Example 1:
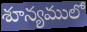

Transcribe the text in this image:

శూన్యములో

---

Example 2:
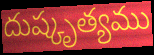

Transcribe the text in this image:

దుష్కృత్యము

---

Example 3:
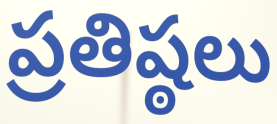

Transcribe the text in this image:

ప్రతిష్ఠలు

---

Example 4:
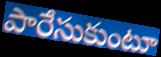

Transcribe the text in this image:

పారేసుకుంటూ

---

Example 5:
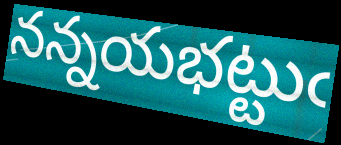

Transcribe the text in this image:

నన్నయభట్టుఁ